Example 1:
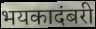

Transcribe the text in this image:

भयकादंबरी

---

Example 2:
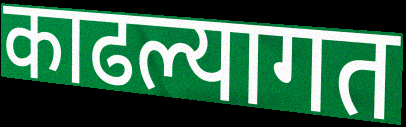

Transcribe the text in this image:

काढल्यागत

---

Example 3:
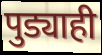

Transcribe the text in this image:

पुड्याही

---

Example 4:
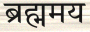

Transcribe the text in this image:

ब्रह्ममय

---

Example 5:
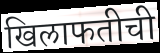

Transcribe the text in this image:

खिलाफतीची